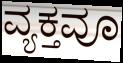
ವ್ಯಕ್ತವೂ